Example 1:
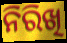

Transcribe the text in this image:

ନିରିଖି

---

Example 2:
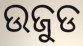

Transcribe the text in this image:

ଉଜୁଡ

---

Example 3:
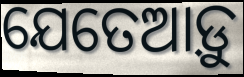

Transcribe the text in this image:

ଯେତେଆଡ଼ୁ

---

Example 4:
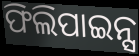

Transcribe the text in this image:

ଫିଲିପାଇନ୍ସ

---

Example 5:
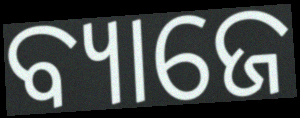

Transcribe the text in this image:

ବ୍ୟାଜେ